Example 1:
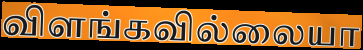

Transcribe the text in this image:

விளங்கவில்லையா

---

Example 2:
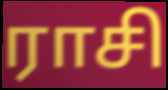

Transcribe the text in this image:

ராசி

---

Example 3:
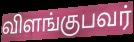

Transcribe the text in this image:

விளங்குபவர்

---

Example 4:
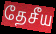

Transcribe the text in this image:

தேசீய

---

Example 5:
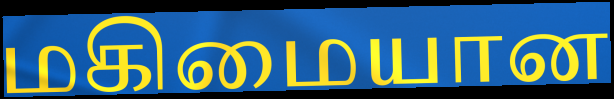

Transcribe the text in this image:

மகிமையான